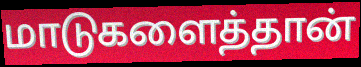
மாடுகளைத்தான்